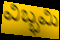
ವಿಬ್ಭಮಿ